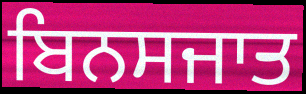
ਬਿਨਸਜਾਤ